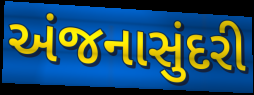
અંજનાસુંદરી